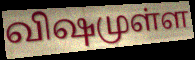
விஷமுள்ள